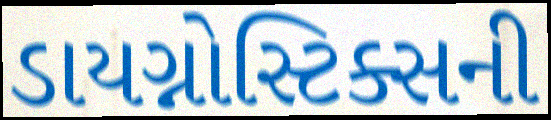
ડાયગ્નોસ્ટિક્સની